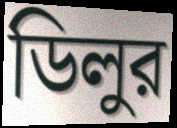
ডিলুর